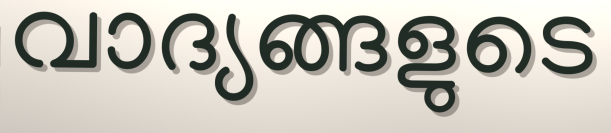
വാദ്യങ്ങളുടെ